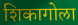
शिकागोला